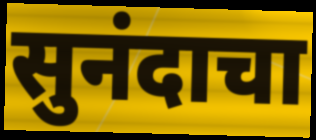
सुनंदाचा